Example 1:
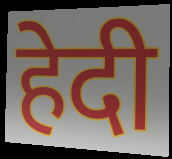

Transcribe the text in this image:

हेदी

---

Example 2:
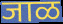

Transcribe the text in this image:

जाळ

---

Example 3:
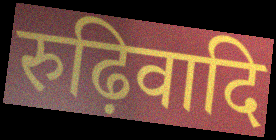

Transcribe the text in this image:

रुढ़िवादि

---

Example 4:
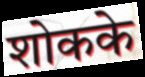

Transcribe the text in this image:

शोकके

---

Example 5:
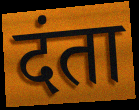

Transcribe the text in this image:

दंता